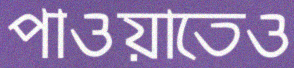
পাওয়াতেও